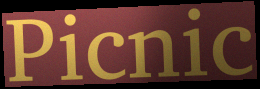
Picnic